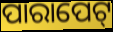
ପାରାପେଟ୍